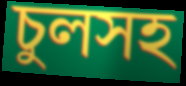
চুলসহ